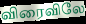
விரைவிலே